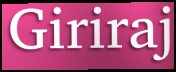
Giriraj